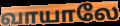
வாயாலே